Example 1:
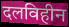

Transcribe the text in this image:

दलविहीन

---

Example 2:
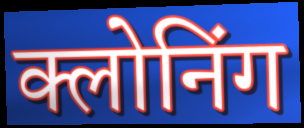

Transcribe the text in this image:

क्लोनिंग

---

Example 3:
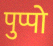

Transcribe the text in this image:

पुप्पो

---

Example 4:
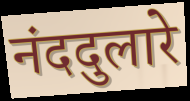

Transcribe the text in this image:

नंददुलारे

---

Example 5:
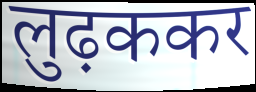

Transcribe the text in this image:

लुढ़ककर